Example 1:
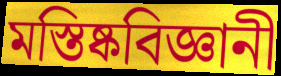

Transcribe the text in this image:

মস্তিষ্কবিজ্ঞানী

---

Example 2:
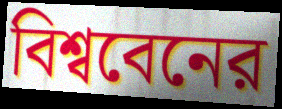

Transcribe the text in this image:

বিশ্ববেনের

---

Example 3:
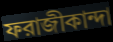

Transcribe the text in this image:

ফরাজীকান্দা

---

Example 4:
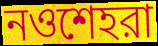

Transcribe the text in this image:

নওশেহরা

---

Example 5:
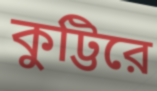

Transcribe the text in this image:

কুট্টিরে